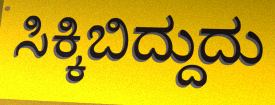
ಸಿಕ್ಕಿಬಿದ್ದುದು